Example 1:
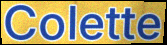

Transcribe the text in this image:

Colette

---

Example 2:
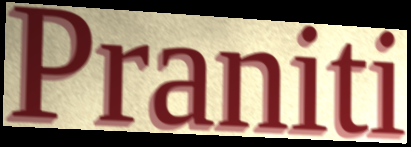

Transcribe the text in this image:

Praniti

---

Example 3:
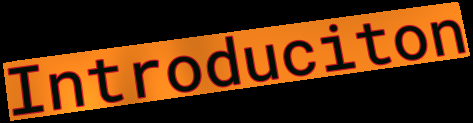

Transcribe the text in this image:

Introduciton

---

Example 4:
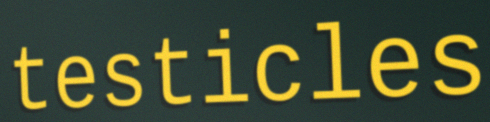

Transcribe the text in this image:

testicles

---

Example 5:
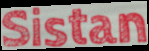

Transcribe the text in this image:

Sistan